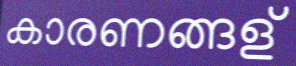
കാരണങ്ങള്